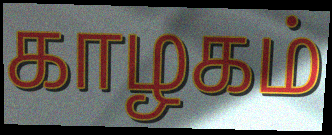
காழகம்